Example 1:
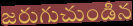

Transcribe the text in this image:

జరుగుచుండిన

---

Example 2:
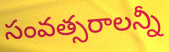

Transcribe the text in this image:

సంవత్సరాలన్నీ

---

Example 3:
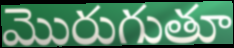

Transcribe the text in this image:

మొరుగుతూ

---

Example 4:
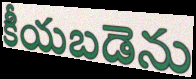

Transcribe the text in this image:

కీయబడెను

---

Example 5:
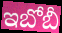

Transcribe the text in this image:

ఇబోబీ